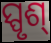
ସ୍ପୃଶ୍